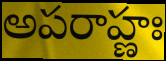
అపరాహ్ణః